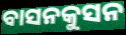
ବାସନକୁସନ